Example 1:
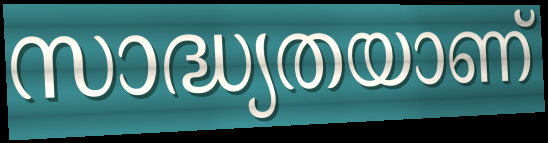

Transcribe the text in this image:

സാദ്ധ്യതയാണ്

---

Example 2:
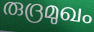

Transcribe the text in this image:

രുദ്രമുഖം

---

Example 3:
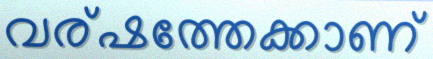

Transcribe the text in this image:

വര്ഷത്തേക്കാണ്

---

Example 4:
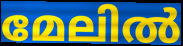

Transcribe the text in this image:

മേലിൽ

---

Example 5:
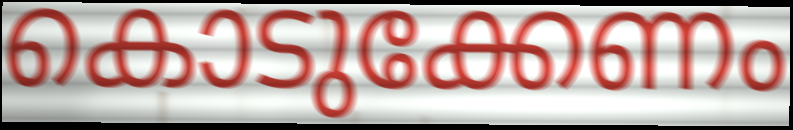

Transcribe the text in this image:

കൊടുക്കേണം